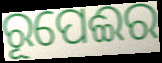
ରୂପେଈର